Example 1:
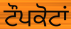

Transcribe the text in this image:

ਟੌਪਕੋਟਾਂ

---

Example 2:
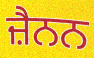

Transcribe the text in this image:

ਜ਼ੈਨਨ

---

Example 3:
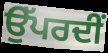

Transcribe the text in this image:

ਉੱਪਰਦੀਂ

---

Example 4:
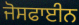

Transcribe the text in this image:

ਜੋਸਫਾਈਨ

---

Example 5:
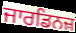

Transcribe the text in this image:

ਜਾਰਡਿਨਜ਼